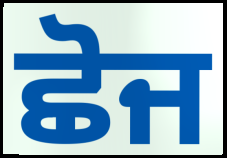
ਛੋਜ